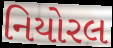
નિયોરલ